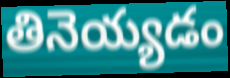
తినెయ్యడం